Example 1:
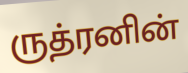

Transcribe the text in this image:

ருத்ரனின்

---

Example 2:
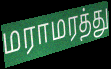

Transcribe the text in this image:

மராமரத்து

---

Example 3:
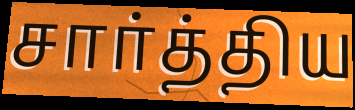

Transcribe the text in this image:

சார்த்திய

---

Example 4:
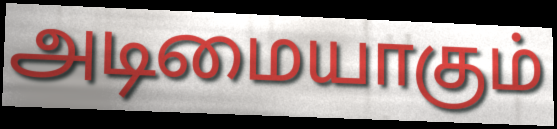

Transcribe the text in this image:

அடிமையாகும்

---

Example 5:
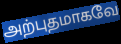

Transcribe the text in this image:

அற்புதமாகவே